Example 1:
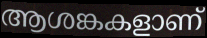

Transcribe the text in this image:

ആശങ്കകളാണ്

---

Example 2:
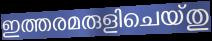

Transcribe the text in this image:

ഇത്തരമരുളിചെയ്തു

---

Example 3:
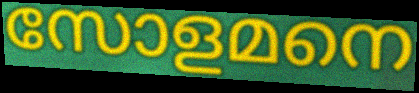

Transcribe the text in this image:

സോളമനെ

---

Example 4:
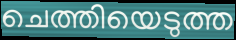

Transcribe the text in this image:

ചെത്തിയെടുത്ത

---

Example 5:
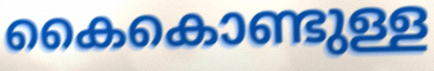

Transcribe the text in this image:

കൈകൊണ്ടുള്ള